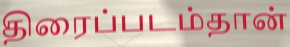
திரைப்படம்தான்